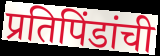
प्रतिपिंडांची